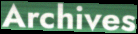
Archives